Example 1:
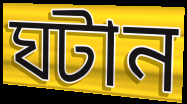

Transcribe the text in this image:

ঘটান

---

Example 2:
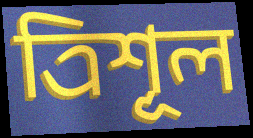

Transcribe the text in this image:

ত্রিশূল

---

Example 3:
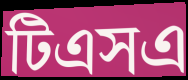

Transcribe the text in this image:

টিএসএ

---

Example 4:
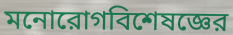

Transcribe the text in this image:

মনোরোগবিশেষজ্ঞের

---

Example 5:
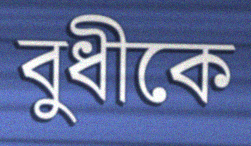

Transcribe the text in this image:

বুধীকে